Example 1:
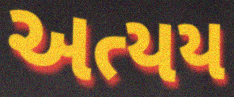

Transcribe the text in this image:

અત્યય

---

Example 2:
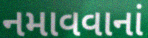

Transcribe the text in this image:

નમાવવાનાં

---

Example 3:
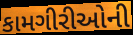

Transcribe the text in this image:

કામગીરીઓની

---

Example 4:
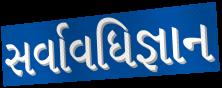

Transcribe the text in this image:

સર્વાવધિજ્ઞાન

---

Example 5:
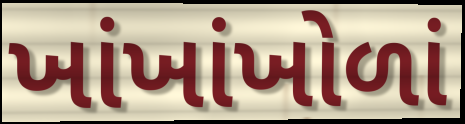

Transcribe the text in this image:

ખાંખાંખોળાં